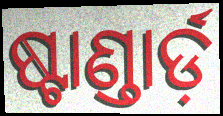
ଷ୍ଟାଣ୍ଡାର୍ଡ଼